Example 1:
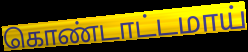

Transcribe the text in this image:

கொண்டாட்டமாய்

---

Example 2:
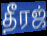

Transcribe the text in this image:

தீரஜ்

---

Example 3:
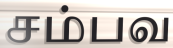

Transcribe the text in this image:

சம்பவ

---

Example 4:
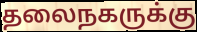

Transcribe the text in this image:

தலைநகருக்கு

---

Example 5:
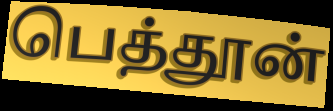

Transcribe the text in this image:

பெத்தூன்